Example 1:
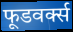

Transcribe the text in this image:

फूडवर्क्स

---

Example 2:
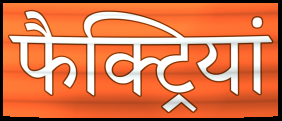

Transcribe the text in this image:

फैक्ट्रियां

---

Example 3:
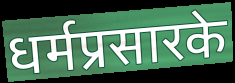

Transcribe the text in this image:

धर्मप्रसारके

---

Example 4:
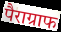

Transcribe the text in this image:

पैराग्राफ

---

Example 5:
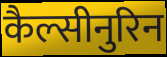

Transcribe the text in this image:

कैल्सीनुरिन